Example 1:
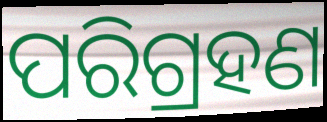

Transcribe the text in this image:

ପରିଗ୍ରହଣ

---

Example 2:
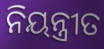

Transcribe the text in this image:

ନିୟନ୍ତ୍ରୀତ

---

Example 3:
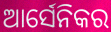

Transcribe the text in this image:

ଆର୍ସେନିକର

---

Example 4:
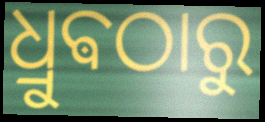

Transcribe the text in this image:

ଧ୍ରୁଵଠାରୁ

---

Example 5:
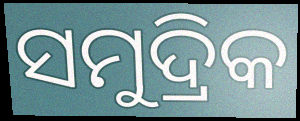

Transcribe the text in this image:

ସମୁଦ୍ରିକ